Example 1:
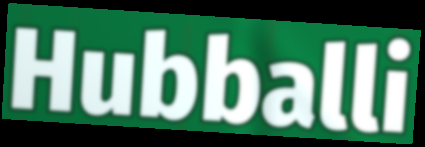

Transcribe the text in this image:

Hubballi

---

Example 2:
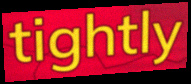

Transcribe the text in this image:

tightly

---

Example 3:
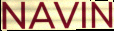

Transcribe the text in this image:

NAVIN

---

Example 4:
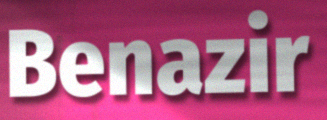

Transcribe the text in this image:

Benazir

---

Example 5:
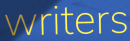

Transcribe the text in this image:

writers